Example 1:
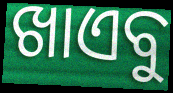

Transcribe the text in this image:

ଖାଏବୁ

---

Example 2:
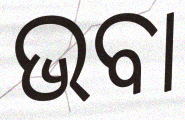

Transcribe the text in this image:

ଭବା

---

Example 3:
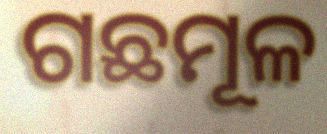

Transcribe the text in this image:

ଗଛମୂଳ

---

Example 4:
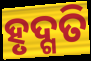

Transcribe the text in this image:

ହୃଦ୍ଗତି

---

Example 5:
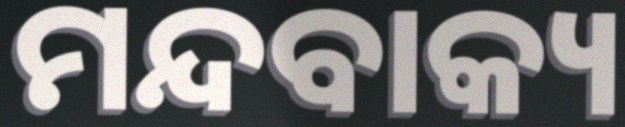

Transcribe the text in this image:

ମନ୍ଦବାକ୍ୟ